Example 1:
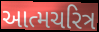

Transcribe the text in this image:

આત્મચરિત્ર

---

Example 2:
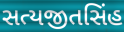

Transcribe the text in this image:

સત્યજીતસિંહ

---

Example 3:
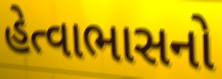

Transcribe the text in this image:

હેત્વાભાસનો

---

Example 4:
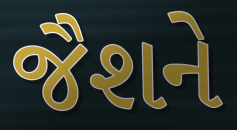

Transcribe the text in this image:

જૈશને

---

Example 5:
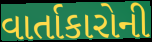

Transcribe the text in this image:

વાર્તાકારોની